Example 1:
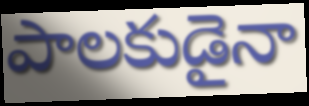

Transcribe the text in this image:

పాలకుడైనా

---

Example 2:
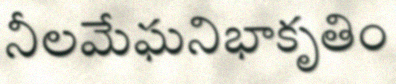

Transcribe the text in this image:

నీలమేఘనిభాకృతిం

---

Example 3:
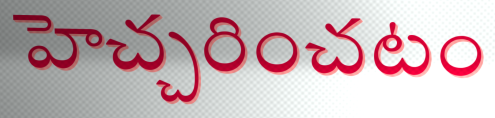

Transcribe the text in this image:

హెచ్చరించటం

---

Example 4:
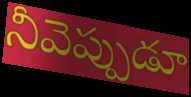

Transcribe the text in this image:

నీవెప్పుడూ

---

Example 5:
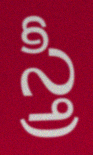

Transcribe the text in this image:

స్త్రీ